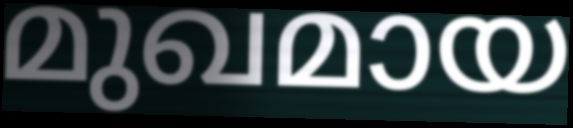
മുഖമായ